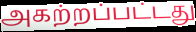
அகற்றப்பட்டது